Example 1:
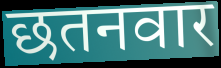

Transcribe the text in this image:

छतनवार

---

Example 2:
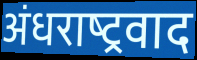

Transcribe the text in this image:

अंधराष्ट्रवाद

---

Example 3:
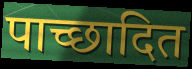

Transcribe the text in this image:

पाच्छादित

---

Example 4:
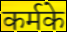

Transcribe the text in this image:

कर्मके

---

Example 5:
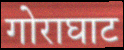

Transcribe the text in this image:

गोराघाट